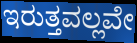
ಇರುತ್ತವಲ್ಲವೇ